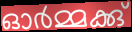
ഓർമ്മക്കു്